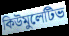
কিউমুলেটিভ